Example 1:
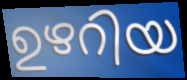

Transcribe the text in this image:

ഉഴറിയ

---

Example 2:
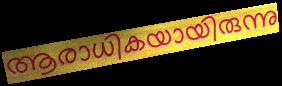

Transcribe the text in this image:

ആരാധികയായിരുന്നു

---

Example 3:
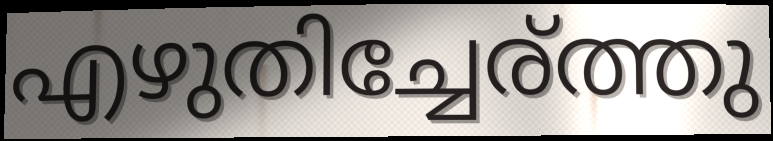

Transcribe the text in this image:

എഴുതിച്ചേര്ത്തു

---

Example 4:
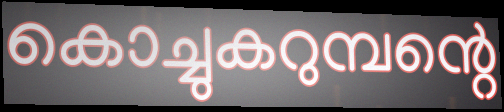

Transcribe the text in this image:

കൊച്ചുകറുമ്പന്റെ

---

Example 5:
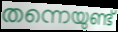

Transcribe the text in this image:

തന്നെയുണ്ട്